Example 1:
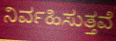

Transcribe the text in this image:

ನಿರ್ವಹಿಸುತ್ತವೆ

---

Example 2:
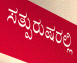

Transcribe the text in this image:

ಸತ್ಪುರುಷರಲ್ಲಿ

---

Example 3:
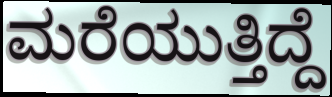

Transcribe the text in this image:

ಮರೆಯುತ್ತಿದ್ದೆ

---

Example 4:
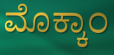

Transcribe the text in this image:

ಮೊಕ್ಕಾಂ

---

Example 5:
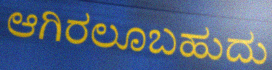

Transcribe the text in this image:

ಆಗಿರಲೂಬಹುದು